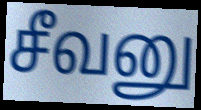
சீவனு